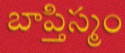
బాప్తిస్మం